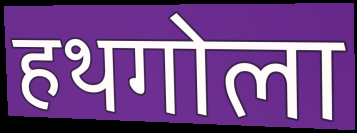
हथगोला